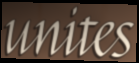
unites